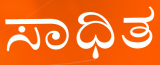
ಸಾಧಿತ